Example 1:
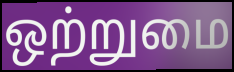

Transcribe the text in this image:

ஒற்றுமை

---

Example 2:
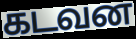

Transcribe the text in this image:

கடவன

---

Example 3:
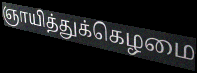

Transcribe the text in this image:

ஞாயித்துக்கெழமை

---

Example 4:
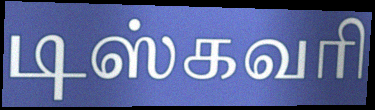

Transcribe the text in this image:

டிஸ்கவரி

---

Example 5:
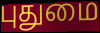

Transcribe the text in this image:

புதுமை